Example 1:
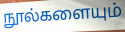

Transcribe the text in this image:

நூல்களையும்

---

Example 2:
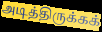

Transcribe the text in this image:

அடித்திருக்கக்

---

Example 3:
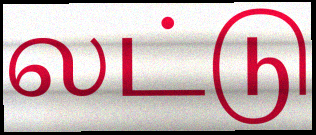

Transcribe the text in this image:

லட்டு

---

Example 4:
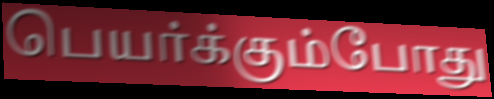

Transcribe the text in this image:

பெயர்க்கும்போது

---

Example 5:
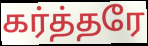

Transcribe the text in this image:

கர்த்தரே